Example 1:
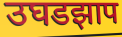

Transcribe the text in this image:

उघडझाप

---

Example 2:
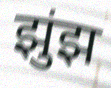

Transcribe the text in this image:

झुंझ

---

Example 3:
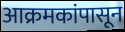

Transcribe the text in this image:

आक्रमकांपासून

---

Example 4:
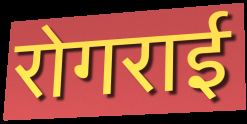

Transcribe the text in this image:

रोगराई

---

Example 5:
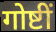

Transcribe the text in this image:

गोष्टीं